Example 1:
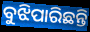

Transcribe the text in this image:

ବୁଝିପାରିଛନ୍ତି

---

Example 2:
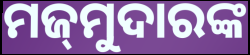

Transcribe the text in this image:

ମଜ୍‍ମୁଦାରଙ୍କ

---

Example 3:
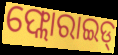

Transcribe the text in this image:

ଫ୍ଲୋରାଇଡ୍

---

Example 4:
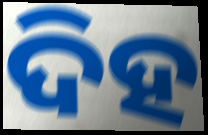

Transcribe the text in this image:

ଦିହ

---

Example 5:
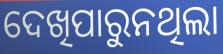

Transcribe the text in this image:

ଦେଖିପାରୁନଥିଲା